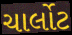
ચાર્લોટ